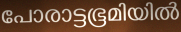
പോരാട്ടഭൂമിയിൽ